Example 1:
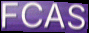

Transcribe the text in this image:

FCAS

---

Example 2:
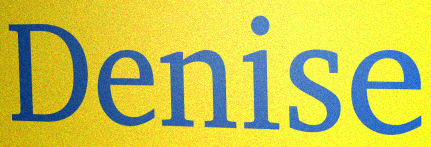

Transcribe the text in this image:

Denise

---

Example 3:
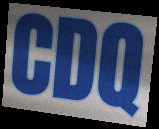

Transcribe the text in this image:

CDQ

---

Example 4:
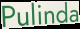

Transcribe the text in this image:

Pulinda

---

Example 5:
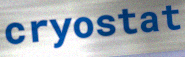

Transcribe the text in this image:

cryostat